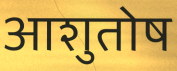
आशुतोष